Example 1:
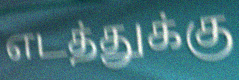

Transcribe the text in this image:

எடத்துக்கு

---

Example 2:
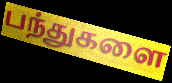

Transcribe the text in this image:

பந்துகளை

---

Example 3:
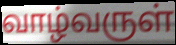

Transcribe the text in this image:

வாழ்வருள்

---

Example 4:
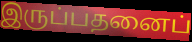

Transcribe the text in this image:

இருப்பதனைப்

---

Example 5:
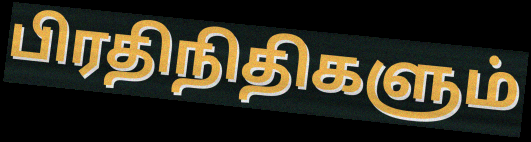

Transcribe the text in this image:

பிரதிநிதிகளும்